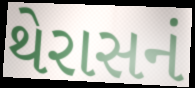
થેરાસનં